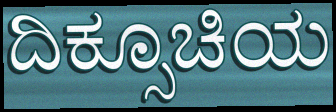
ದಿಕ್ಸೂಚಿಯ